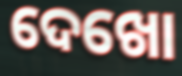
ଦେଖୋ